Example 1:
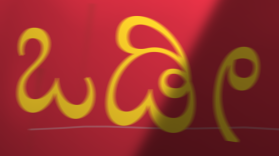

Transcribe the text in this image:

ಒಡೀ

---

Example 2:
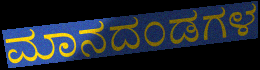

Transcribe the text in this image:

ಮಾನದಂಡಗಳ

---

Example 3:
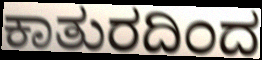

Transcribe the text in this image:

ಕಾತುರದಿಂದ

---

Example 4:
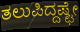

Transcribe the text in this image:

ತಲುಪಿದ್ದಷ್ಟೇ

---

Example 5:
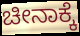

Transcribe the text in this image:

ಚೀನಾಕ್ಕೆ